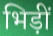
भिड़ीं